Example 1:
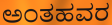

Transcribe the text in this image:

ಅಂತಹವರ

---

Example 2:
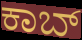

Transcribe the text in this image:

ಕಾಬ್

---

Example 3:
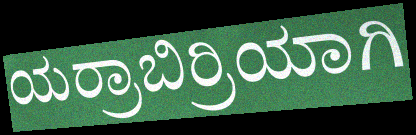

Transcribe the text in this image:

ಯರ್ರಾಬಿರ್ರಿಯಾಗಿ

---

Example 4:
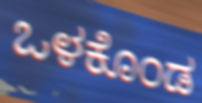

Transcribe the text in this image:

ಒಳಕೊಂಡ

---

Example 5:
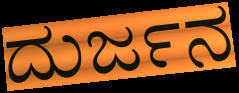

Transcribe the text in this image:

ದುರ್ಜನ